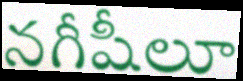
నగీషీలూ